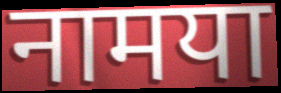
नामया